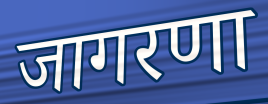
जागरणा